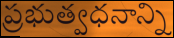
ప్రభుత్వధనాన్ని